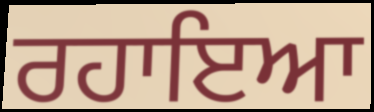
ਰਹਾਇਆ